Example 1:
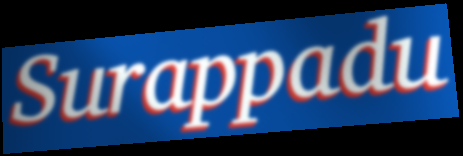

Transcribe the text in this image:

Surappadu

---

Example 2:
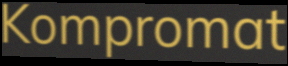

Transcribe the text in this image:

Kompromat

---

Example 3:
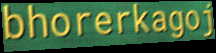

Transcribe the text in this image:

bhorerkagoj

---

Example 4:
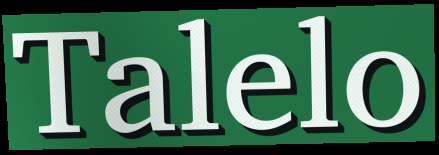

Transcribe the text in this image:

Talelo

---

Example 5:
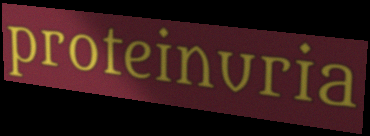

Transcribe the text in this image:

proteinuria